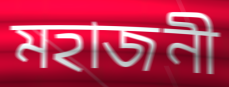
মহাজনী